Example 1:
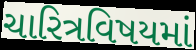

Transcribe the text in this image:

ચારિત્રવિષયમાં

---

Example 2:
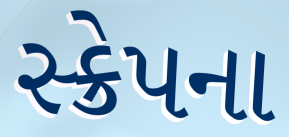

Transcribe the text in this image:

સ્ક્રેપના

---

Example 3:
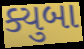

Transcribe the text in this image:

ક્યુબા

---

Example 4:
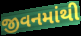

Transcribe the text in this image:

જીવનમાંથી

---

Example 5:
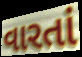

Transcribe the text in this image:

વારતાં